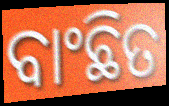
ବାଂଛିତ